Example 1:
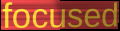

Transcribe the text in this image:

focused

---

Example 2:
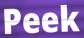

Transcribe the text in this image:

Peek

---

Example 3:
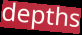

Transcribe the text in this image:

depths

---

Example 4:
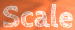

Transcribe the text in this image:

Scale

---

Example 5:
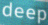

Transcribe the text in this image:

deep